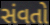
સંવતો